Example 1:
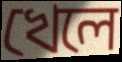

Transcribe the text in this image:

খেলে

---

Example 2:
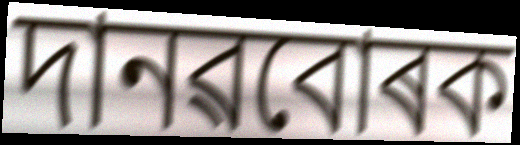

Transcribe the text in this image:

দানৱবোৰক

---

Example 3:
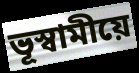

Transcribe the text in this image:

ভূস্বামীয়ে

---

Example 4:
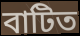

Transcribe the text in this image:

বাটিত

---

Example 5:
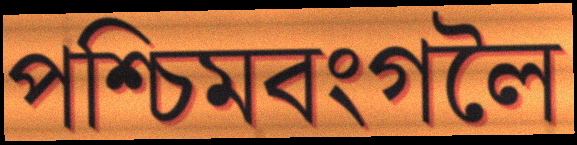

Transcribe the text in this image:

পশ্চিমবংগলৈ